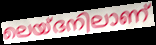
ലെയ്ദനിലാണ്